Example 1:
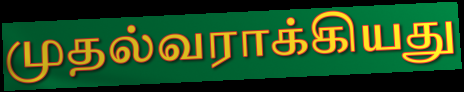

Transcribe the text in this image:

முதல்வராக்கியது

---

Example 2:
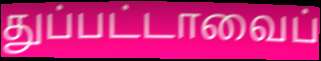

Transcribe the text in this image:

துப்பட்டாவைப்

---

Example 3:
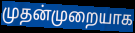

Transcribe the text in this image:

முதன்முறையாக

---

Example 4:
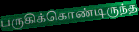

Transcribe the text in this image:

பருகிக்கொண்டிருந்த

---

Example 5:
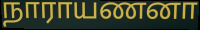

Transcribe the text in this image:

நாராயணனா